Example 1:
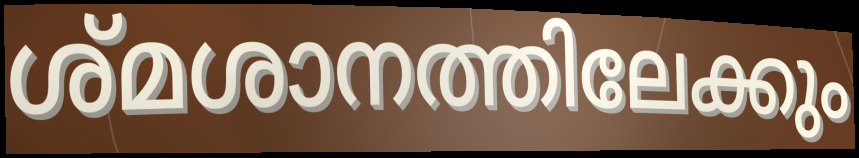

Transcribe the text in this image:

ശ്മശാനത്തിലേക്കും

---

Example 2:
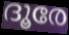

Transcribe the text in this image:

ദൂരേ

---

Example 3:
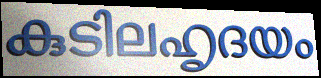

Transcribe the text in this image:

കുടിലഹൃദയം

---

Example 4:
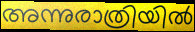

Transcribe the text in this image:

അന്നുരാത്രിയിൽ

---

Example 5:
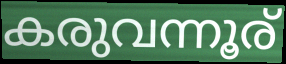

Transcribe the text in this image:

കരുവന്നൂര്